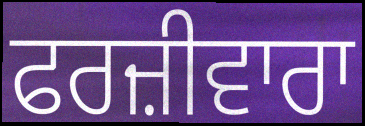
ਫਰਜ਼ੀਵਾਰਾ